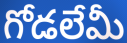
గోడలేమీ